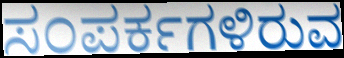
ಸಂಪರ್ಕಗಳಿರುವ